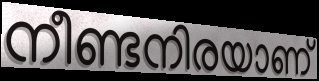
നീണ്ടനിരയാണ്